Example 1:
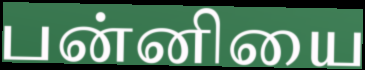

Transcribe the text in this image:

பன்னியை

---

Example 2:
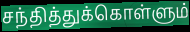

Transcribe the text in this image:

சந்தித்துக்கொள்ளும்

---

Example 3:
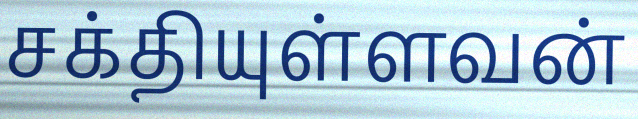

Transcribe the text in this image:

சக்தியுள்ளவன்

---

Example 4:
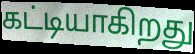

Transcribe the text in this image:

கட்டியாகிறது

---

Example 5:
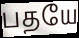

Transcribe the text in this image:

பதயே